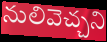
నులివెచ్చని